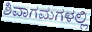
ಶಿವಾಗಮಗಳಲ್ಲಿ